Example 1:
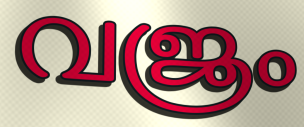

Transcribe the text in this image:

വജ്രം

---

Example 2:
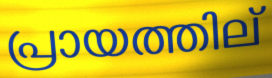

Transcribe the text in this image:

പ്രായത്തില്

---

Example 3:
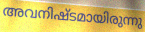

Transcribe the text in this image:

അവനിഷ്ടമായിരുന്നു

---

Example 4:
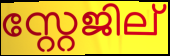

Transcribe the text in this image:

സ്റ്റേജില്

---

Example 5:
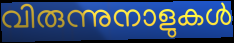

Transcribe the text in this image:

വിരുന്നുനാളുകൾ